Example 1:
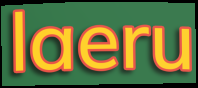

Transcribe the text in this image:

laeru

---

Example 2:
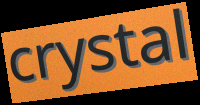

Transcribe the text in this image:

crystal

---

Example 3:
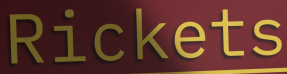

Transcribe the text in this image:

Rickets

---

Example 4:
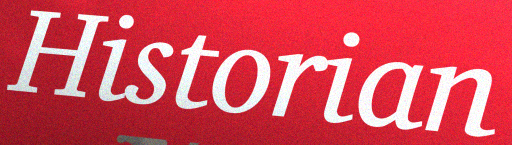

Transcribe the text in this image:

Historian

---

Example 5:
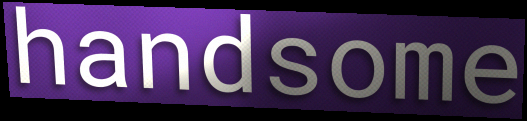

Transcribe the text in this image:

handsome